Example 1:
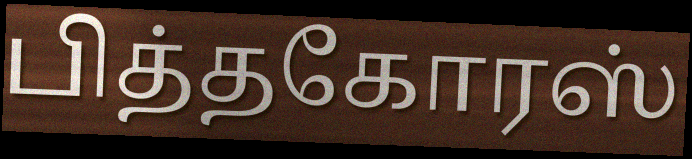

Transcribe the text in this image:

பித்தகோரஸ்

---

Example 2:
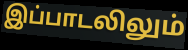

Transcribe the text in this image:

இப்பாடலிலும்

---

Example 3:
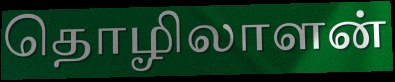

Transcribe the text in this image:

தொழிலாளன்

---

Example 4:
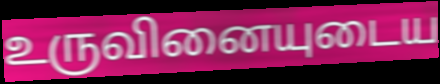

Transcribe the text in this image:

உருவினையுடைய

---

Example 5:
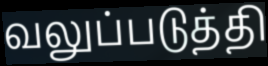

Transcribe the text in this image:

வலுப்படுத்தி